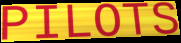
PILOTS